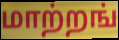
மாற்றங்